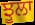
ਝੂਲਾ